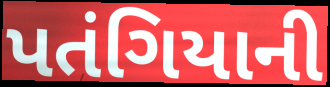
પતંગિયાની